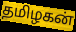
தமிழகன்